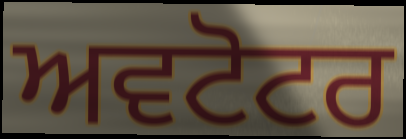
ਅਵਟੋਟਰ